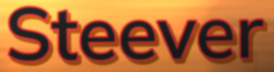
Steever